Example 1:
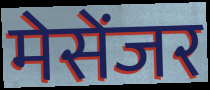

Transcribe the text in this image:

मेसेंजर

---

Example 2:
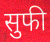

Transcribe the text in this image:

सुफी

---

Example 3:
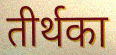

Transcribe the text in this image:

तीर्थका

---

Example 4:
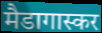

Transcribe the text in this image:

मैडागास्कर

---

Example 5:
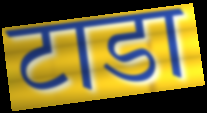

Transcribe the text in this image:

टाडा